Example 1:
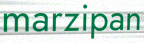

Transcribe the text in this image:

marzipan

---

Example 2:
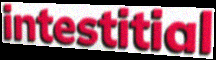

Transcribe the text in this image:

intestitial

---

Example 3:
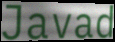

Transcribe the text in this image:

Javad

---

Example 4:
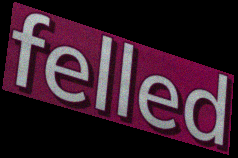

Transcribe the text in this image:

felled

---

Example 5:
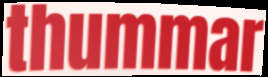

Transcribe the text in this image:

thummar